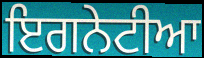
ਇਗਨੇਟੀਆ